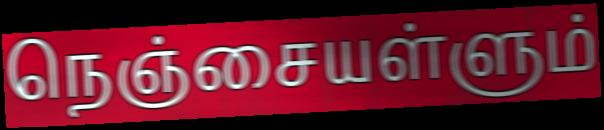
நெஞ்சையள்ளும்